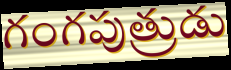
గంగపుత్రుడు